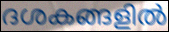
ദശകങ്ങളിൽ